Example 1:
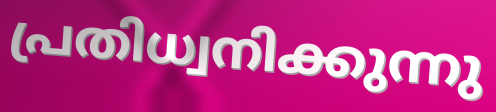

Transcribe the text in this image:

പ്രതിധ്വനിക്കുന്നു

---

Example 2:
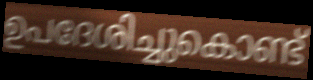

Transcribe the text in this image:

ഉപദേശിച്ചുകൊണ്ട്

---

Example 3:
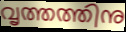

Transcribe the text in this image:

വൃത്തത്തിനു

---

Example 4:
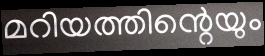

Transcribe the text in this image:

മറിയത്തിന്റെയും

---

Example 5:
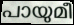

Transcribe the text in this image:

പായുമീ